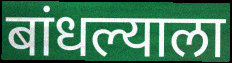
बांधल्याला